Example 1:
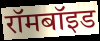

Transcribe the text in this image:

रॉमबॉइड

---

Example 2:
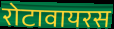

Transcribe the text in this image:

रोटावायरस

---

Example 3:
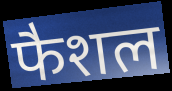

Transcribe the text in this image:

फैशल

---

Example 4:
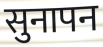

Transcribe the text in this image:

सुनापन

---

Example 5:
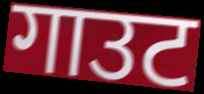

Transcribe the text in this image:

गाउट